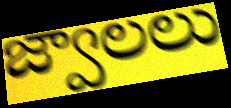
జ్వాలలు